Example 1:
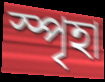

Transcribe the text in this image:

স্পৃহা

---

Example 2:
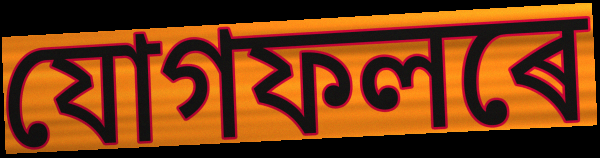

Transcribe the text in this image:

যোগফলৰে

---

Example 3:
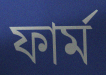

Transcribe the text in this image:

ফাৰ্ম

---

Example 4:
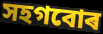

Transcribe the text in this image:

সহগবোৰ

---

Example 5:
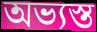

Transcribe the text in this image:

অভ্যস্ত